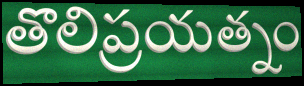
తొలిప్రయత్నం